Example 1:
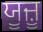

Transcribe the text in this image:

ਯੂਜ਼ੂ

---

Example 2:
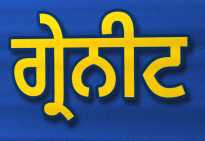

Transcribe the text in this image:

ਗ੍ਰੇਨੀਟ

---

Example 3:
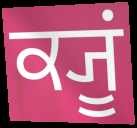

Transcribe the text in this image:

ਕ੍ਯੂਂ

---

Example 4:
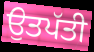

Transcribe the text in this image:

ਉਤਪੱਤੀ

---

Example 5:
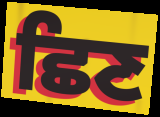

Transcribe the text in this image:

ਛਿਣ